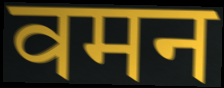
वमन